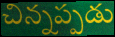
చిన్నప్పడు